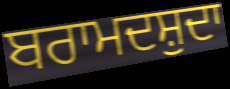
ਬਰਾਮਦਸ਼ੁਦਾ